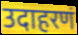
उदाहरणं